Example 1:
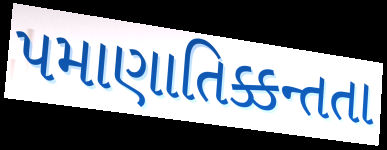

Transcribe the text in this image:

પમાણાતિક્કન્તતા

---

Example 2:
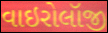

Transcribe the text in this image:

વાઇરોલૉજી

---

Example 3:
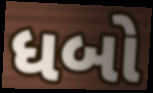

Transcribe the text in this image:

ધબો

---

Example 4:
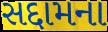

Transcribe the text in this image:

સદ્દામના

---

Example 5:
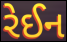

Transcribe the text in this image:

રેઈન